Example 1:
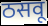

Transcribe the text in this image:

ठसवू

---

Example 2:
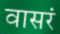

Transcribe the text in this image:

वासरं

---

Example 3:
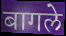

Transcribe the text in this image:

बागले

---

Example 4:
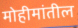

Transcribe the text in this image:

मोहीमांतील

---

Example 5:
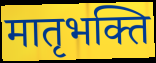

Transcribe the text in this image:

मातृभक्ति